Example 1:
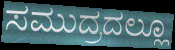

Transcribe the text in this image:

ಸಮುದ್ರದಲ್ಲೂ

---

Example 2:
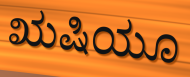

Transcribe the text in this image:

ಋಷಿಯೂ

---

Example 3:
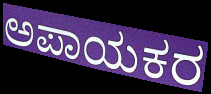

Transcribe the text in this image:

ಅಪಾಯಕರ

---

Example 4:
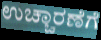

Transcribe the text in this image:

ಉಚ್ಚಾರಣೆಗೆ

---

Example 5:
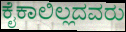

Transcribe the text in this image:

ಕೈಕಾಲಿಲ್ಲದವರು